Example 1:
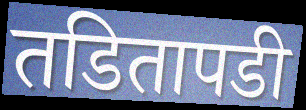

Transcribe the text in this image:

तडितापडी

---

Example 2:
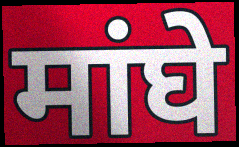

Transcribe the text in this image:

मांघे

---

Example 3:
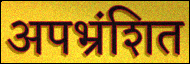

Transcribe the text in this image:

अपभ्रंशित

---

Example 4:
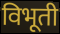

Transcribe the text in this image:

विभूती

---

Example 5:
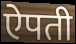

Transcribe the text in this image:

ऐपती